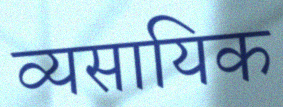
व्यसायिक